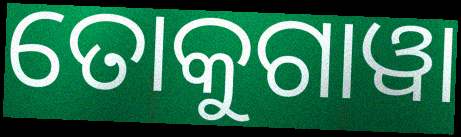
ତୋକୁଗାୱା